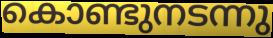
കൊണ്ടുനടന്നു